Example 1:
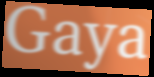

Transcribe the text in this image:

Gaya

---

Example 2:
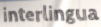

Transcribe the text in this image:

interlingua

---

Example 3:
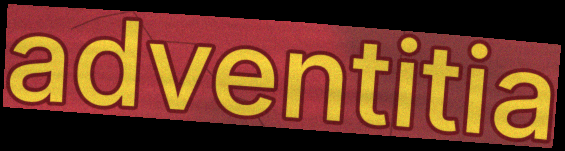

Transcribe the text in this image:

adventitia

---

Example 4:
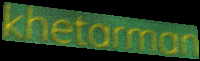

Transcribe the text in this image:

khetarman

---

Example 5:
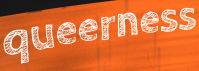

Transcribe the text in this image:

queerness